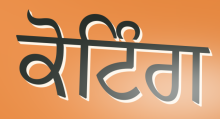
ਕੋਟਿੰਗ